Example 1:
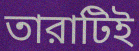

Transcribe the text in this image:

তারাটিই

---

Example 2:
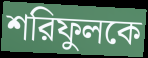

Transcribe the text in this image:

শরিফুলকে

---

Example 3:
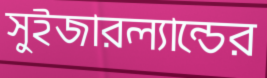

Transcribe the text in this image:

সুইজারল্যান্ডের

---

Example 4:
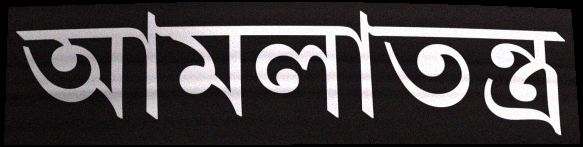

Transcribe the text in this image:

আমলাতন্ত্র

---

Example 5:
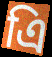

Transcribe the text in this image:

এি